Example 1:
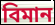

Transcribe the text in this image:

বিমান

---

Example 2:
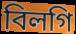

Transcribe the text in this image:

বিলগি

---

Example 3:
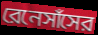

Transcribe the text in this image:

রেনেসাঁসের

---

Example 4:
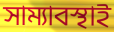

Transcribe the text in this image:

সাম্যাবস্থাই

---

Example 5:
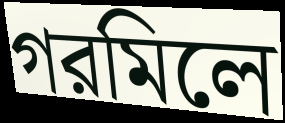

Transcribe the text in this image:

গরমিলে